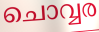
ചൊവ്വര